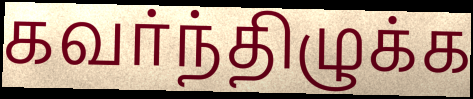
கவர்ந்திழுக்க